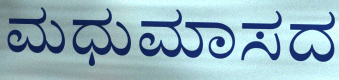
ಮಧುಮಾಸದ